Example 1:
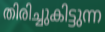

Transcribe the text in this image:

തിരിച്ചുകിട്ടുന്ന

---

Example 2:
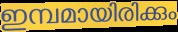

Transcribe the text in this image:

ഇമ്പമായിരിക്കും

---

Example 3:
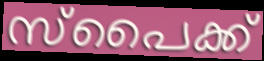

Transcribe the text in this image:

സ്പൈക്ക്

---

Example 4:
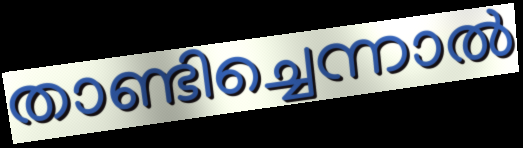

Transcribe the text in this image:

താണ്ടിച്ചെന്നാൽ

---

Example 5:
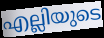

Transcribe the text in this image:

എല്ലിയുടെ